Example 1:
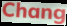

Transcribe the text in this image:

Chang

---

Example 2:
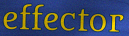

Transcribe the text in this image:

effector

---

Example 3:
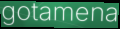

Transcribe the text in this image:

gotamena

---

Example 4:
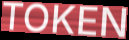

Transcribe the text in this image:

TOKEN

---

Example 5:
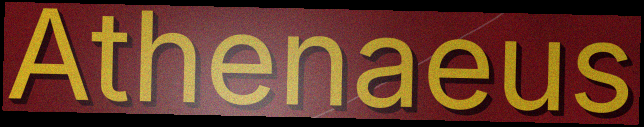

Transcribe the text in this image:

Athenaeus